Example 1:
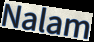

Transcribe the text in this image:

Nalam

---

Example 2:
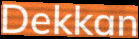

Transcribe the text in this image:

Dekkan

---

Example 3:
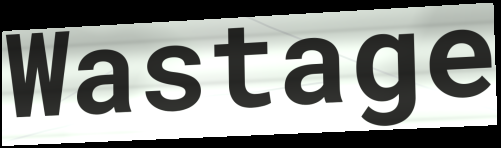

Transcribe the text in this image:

Wastage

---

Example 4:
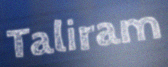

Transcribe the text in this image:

Taliram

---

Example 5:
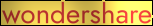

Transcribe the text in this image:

wondershare